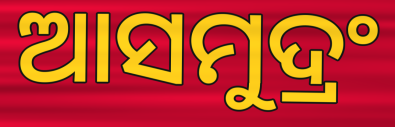
ଆସମୁଦ୍ରଂ